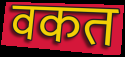
वकत